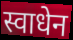
स्वाधेन